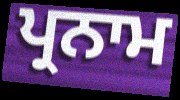
ਪ੍ਰਨਾਮ